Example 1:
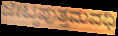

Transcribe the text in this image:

ಜೇಟ್ಠಪುತ್ತಮವಧಿ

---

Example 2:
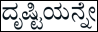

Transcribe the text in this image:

ದೃಷ್ಟಿಯನ್ನೇ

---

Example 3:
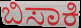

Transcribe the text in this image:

ಬಿಸಾಕಿ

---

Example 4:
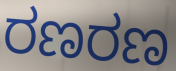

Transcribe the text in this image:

ರಣರಣ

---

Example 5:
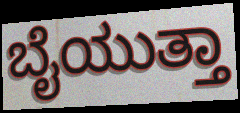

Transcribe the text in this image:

ಬೈಯುತ್ತಾ